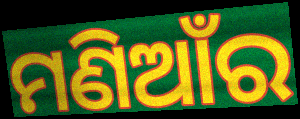
ମଣିଆଁର